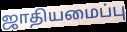
ஜாதியமைப்பு